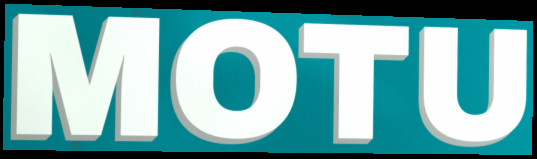
MOTU